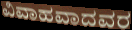
ವಿವಾಹವಾದವರ